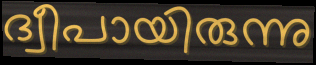
ദ്വീപായിരുന്നു